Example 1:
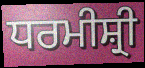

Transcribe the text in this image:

ਧਰਮੀਸ਼੍ਰੀ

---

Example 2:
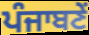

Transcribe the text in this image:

ਪੰਜਾਬਣੇਂ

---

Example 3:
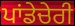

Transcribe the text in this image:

ਪਾਂਡੇਚੇਰੀ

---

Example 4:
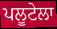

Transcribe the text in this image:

ਪਲੂਟੇਲਾ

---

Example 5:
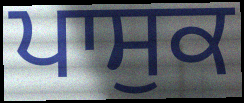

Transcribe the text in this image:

ਪਾਸੁਕ